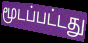
மூடப்பட்டது